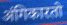
अंगिकारतो